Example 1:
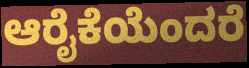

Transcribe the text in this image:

ಆರೈಕೆಯೆಂದರೆ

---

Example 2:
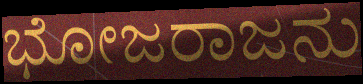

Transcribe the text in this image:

ಭೋಜರಾಜನು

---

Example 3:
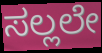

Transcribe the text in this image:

ಸಲ್ಲಲೇ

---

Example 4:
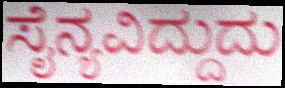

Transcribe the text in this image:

ಸೈನ್ಯವಿದ್ದುದು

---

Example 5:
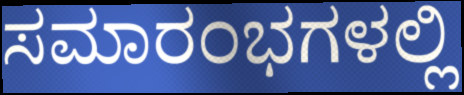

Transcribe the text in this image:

ಸಮಾರಂಭಗಳಲ್ಲಿ